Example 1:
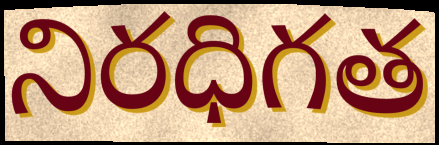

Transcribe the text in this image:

నిరధిగత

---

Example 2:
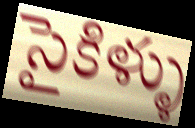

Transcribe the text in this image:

సైకిళ్ళు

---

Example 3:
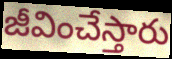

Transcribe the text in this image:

జీవించేస్తారు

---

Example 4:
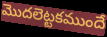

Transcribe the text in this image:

మొదలెట్టకముందే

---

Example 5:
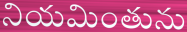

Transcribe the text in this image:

నియమింతును